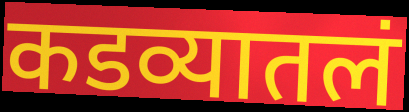
कडव्यातलं